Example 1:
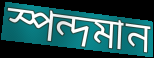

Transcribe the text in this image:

স্পন্দমান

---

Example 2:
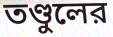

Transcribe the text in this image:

তণ্ডুলের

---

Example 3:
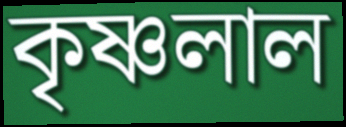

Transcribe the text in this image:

কৃষ্ণলাল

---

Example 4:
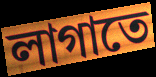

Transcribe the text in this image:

লাগাতে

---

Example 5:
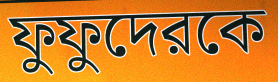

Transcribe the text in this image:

ফুফুদেরকে